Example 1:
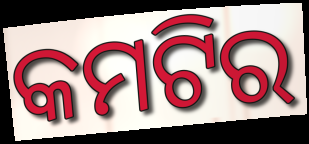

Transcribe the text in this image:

କମଟିର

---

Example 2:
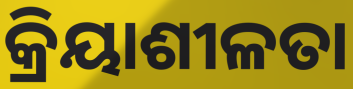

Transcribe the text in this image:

କ୍ରିୟାଶୀଳତା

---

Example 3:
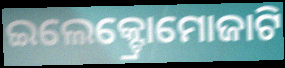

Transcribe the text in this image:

ଇଲେକ୍ଟ୍ରୋମୋଜାଟି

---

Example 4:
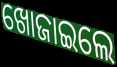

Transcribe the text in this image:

ଖୋଜାଇଲେ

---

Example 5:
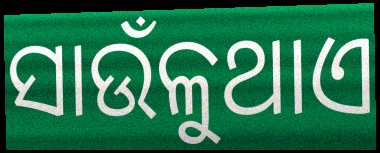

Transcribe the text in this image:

ସାଉଁଳୁଥାଏ